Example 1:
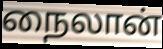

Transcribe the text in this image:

நைலான்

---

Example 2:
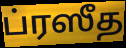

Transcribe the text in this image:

ப்ரஸீத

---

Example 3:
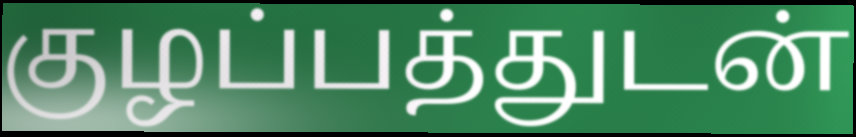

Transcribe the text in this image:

குழப்பத்துடன்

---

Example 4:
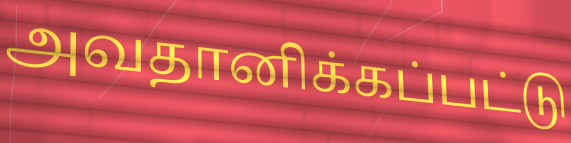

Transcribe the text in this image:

அவதானிக்கப்பட்டு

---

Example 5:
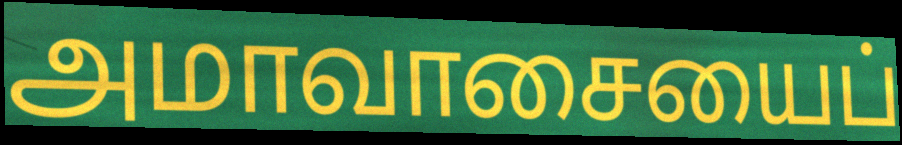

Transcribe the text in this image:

அமாவாசையைப்